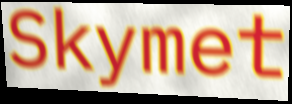
Skymet